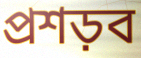
প্রশড়ব